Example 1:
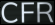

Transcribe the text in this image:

CFR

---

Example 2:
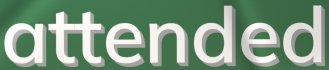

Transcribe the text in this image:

attended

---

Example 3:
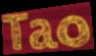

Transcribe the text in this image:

Tao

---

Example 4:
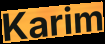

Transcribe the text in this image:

Karim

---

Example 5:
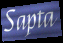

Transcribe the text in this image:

Sapta